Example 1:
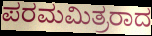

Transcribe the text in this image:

ಪರಮಮಿತ್ರರಾದ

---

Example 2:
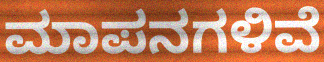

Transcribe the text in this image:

ಮಾಪನಗಳಿವೆ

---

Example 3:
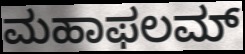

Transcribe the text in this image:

ಮಹಾಫಲಮ್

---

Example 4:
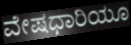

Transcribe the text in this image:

ವೇಷಧಾರಿಯೂ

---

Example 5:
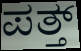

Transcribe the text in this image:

ಪತ್ತ್